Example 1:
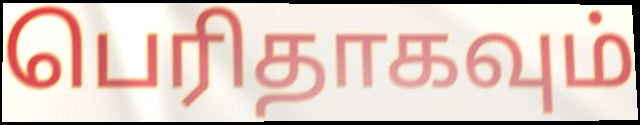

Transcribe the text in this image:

பெரிதாகவும்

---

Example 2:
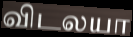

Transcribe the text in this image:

விடலயா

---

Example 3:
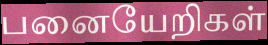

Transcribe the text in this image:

பனையேறிகள்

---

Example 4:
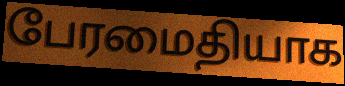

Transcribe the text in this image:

பேரமைதியாக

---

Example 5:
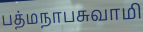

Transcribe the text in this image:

பத்மநாபசுவாமி